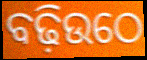
ବଢ଼ିଉଠେ